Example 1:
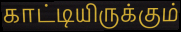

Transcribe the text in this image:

காட்டியிருக்கும்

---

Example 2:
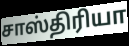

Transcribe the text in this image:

சாஸ்திரியா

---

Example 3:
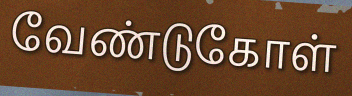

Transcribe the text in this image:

வேண்டுகோள்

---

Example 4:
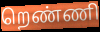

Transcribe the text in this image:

றெண்ணி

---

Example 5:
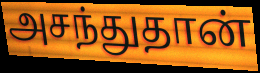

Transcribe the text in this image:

அசந்துதான்